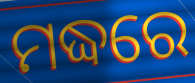
ମଦ୍ଧରେ